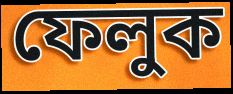
ফেলুক